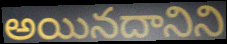
అయినదానిని